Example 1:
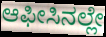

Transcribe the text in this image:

ಆಫೀಸಿನಲ್ಲೇ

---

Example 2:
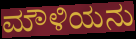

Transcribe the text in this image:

ಮೌಳಿಯನು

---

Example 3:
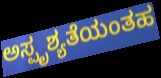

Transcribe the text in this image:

ಅಸ್ಪೃಶ್ಯತೆಯಂತಹ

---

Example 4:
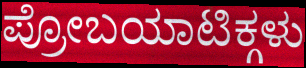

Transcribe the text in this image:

ಪ್ರೋಬಯಾಟಿಕ್ಗಳು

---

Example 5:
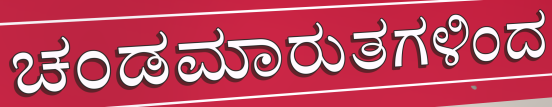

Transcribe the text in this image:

ಚಂಡಮಾರುತಗಳಿಂದ